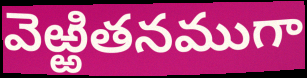
వెఱ్ఱితనముగా